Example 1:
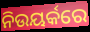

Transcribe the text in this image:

ନିଉୟର୍କରେ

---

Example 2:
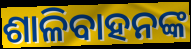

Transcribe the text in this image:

ଶାଳିବାହନଙ୍କ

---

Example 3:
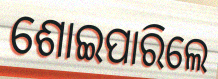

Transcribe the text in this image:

ଶୋଇପାରିଲେ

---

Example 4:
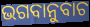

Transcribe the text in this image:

ଭଗବାନୁବାଚ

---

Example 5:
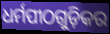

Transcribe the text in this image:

ଧର୍ମପୀଠଗୁଡ଼ିକର